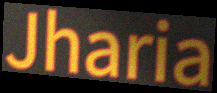
Jharia